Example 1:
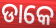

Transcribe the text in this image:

ଡାକେ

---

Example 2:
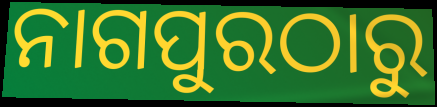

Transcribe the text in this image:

ନାଗପୁରଠାରୁ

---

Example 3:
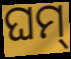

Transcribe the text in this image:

ଘମ୍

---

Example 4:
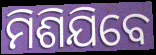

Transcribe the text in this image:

ମିଶିଯିବେ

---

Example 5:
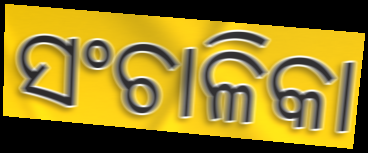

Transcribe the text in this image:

ସଂଚାଳିକା